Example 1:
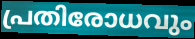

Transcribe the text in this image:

പ്രതിരോധവും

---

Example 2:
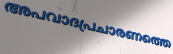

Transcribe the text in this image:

അപവാദപ്രചാരണത്തെ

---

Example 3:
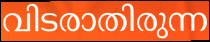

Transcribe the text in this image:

വിടരാതിരുന്ന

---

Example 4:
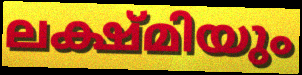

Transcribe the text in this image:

ലക്ഷ്മിയും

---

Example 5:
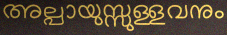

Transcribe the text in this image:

അല്പായുസ്സുള്ളവനും